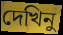
দেখিনু